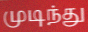
முடிந்து